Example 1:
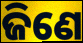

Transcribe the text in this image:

ଜିଣେ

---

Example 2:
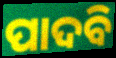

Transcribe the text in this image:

ପାଦବି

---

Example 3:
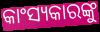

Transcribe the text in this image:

କାଂସ୍ୟକାରଙ୍କୁ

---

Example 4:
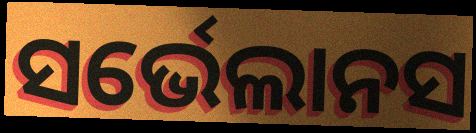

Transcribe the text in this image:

ସର୍ଭେଲାନସ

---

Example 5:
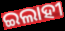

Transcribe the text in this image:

ଇଲାହୀ